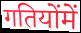
गतियोंमें